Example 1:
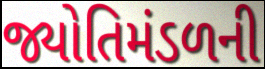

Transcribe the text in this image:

જ્યોતિમંડળની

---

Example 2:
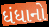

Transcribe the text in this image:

ધંધાનો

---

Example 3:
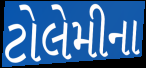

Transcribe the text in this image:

ટોલેમીના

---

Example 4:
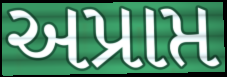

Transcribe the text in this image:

અપ્રાપ્ત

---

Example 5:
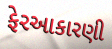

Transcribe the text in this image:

ફેરઆકારણી